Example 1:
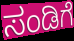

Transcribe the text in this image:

ಸಂಡಿಗೆ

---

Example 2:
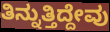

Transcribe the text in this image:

ತಿನ್ನುತ್ತಿದ್ದೇವು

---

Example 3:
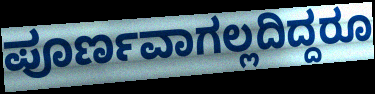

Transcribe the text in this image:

ಪೂರ್ಣವಾಗಲ್ಲದಿದ್ದರೂ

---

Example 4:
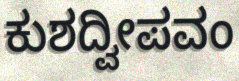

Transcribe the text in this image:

ಕುಶದ್ವೀಪವಂ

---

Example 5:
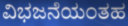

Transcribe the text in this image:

ವಿಭಜನೆಯಂತಹ